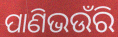
ପାଣିଭଉଁରି